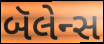
બૅલેન્સ